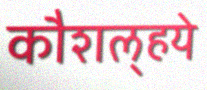
कौशल्हये